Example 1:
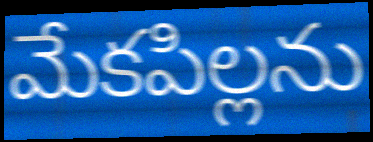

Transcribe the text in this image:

మేకపిల్లను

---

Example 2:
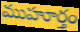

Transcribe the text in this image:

ముహూర్తం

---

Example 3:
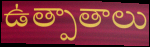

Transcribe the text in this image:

ఉత్పాతాలు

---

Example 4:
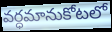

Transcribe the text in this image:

వర్ధమానుకోటలో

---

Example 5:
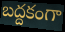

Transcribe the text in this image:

బద్దకంగా